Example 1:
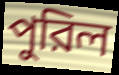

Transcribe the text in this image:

পুরিল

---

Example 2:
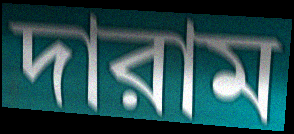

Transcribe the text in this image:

দারাম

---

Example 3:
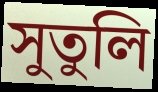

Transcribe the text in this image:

সুতুলি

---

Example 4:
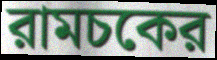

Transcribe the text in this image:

রামচকের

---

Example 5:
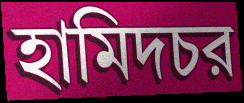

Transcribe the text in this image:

হামিদচর